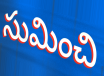
సుమించి